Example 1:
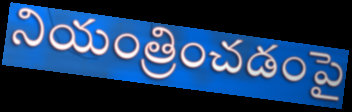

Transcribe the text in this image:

నియంత్రించడంపై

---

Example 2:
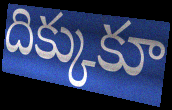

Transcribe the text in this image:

దిక్కుకూ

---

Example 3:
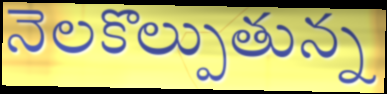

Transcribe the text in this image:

నెలకొల్పుతున్న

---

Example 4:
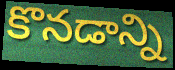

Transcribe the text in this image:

కొనడాన్ని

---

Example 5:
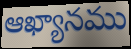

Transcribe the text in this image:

ఆఖ్యానము